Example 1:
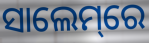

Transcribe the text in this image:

ସାଲେମ୍‌ରେ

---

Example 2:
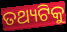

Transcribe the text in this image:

ତଥ୍ୟଟିକୁ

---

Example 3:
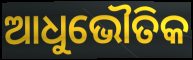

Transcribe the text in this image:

ଆଧୁଭୌତିକ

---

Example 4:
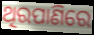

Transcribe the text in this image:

ଥିରପାଣିରେ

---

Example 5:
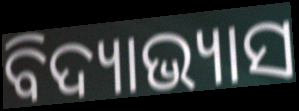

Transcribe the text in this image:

ବିଦ୍ୟାଭ୍ୟାସ